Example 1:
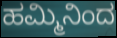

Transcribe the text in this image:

ಹಮ್ಮಿನಿಂದ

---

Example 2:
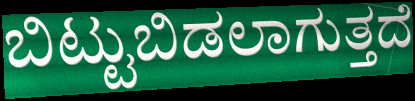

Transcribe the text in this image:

ಬಿಟ್ಟುಬಿಡಲಾಗುತ್ತದೆ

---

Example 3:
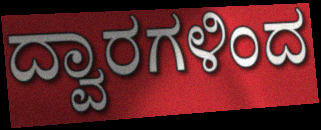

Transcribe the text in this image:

ದ್ವಾರಗಳಿಂದ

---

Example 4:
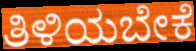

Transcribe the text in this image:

ತಿಳಿಯಬೇಕೆ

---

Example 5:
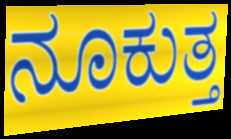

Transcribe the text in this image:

ನೂಕುತ್ತ